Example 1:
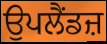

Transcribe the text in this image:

ਉਪਲੈਂਡਜ਼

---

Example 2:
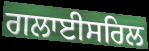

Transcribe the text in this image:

ਗਲਾਈਸਰਿਲ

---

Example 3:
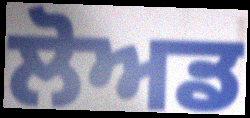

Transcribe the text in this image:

ਲੋਅਡ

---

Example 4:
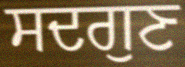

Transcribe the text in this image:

ਸਦਗੁਣ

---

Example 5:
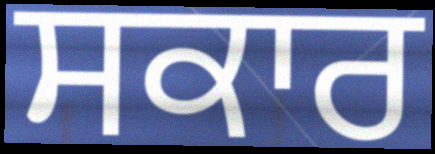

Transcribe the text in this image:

ਸਕਾਰ